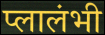
प्लालंभी